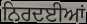
ਨਿਰਦਈਆਂ